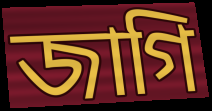
জাগি